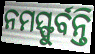
ନମସ୍ଫୁର୍ବନ୍ତି